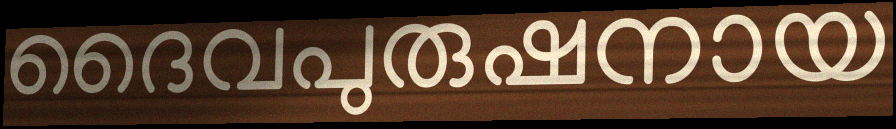
ദൈവപുരുഷനായ